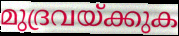
മുദ്രവയ്ക്കുക